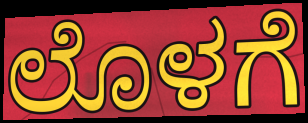
ಲೊಳಗೆ